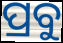
ପ୍ରବୁ